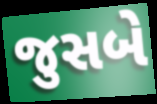
જુસબે